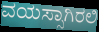
ವಯಸ್ಸಾಗಿರಲಿ